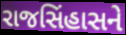
રાજસિંહાસને